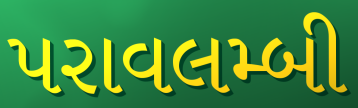
પરાવલમ્બી